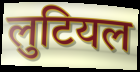
लुटियल